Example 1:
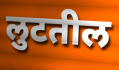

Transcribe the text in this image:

लुटतील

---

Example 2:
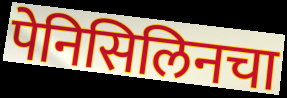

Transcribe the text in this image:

पेनिसिलिनचा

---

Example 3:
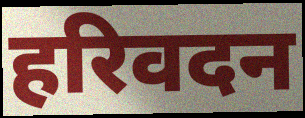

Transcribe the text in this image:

हरिवदन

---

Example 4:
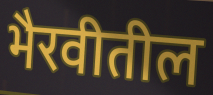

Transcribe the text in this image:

भैरवीतील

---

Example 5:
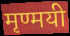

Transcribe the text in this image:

मृण्मयी